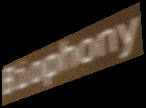
Biophony